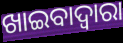
ଖାଇବାଦ୍ଵାରା